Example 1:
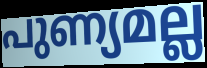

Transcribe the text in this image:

പുണ്യമല്ല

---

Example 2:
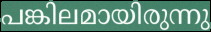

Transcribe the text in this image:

പങ്കിലമായിരുന്നു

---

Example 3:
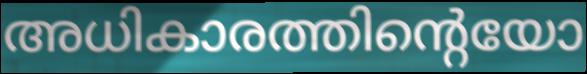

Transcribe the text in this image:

അധികാരത്തിന്റെയോ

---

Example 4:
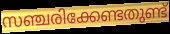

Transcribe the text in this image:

സഞ്ചരിക്കേണ്ടതുണ്ട്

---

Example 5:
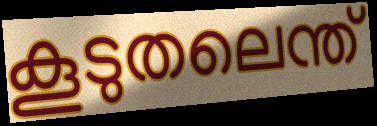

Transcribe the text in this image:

കൂടുതലെന്ത്